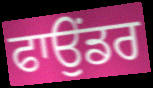
ਫਾਉਂਡਰ